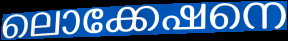
ലൊക്കേഷനെ